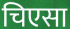
चिएसा